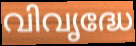
വിവൃദ്ധേ